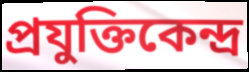
প্রযুক্তিকেন্দ্র